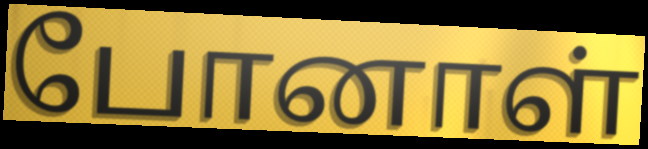
போனாள்